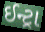
ઈન્ટ્રા